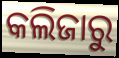
କଲିଜାରୁ